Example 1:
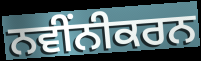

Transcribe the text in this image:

ਨਵੀਂਨੀਕਰਨ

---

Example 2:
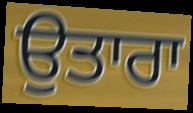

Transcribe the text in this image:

ਉਤਾਰਾ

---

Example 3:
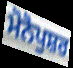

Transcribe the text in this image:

ਮੋਨੋਪੁਸ਼ਰ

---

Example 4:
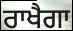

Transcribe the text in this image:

ਰਾਖੈਗਾ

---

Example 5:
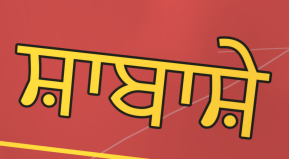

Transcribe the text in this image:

ਸ਼ਾਬਾਸ਼ੇ